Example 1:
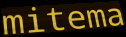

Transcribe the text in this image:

mitema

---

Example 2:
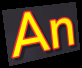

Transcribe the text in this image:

An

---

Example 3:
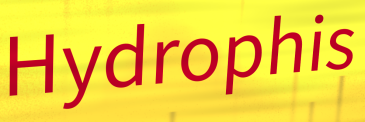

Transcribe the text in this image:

Hydrophis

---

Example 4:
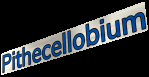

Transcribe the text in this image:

Pithecellobium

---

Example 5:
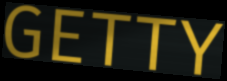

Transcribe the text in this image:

GETTY